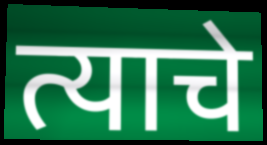
त्याचे